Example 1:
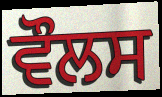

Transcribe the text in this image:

ਵੌਲਸ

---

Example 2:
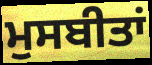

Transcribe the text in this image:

ਮੁਸਬੀਤਾਂ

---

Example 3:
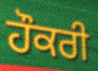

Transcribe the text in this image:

ਹੌਕਰੀ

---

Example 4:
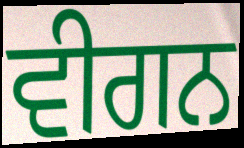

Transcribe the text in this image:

ਵੀਗਨ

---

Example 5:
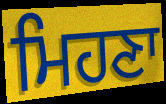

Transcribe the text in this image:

ਮਿਹਣਾ